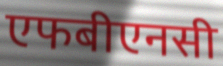
एफबीएनसी